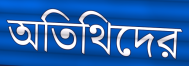
অতিথিদের